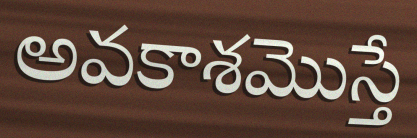
అవకాశమొస్తే